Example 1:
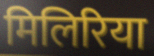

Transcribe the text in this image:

मिलिरिया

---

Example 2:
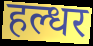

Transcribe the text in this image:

हल्धर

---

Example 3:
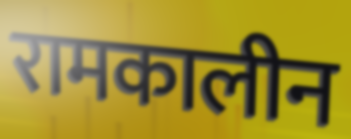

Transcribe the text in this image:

रामकालीन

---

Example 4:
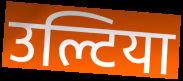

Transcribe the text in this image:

उल्टिया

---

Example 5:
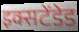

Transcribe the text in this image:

इक्सटेंडेड